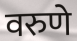
वरुणे